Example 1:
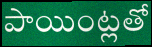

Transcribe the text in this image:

పాయింట్లతో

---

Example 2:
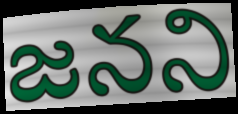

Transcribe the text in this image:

జనని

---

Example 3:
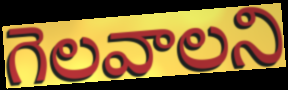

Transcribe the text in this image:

గెలవాలని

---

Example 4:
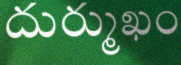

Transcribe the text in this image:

దుర్ముఖం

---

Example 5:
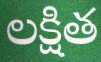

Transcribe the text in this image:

లక్షిత